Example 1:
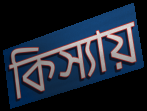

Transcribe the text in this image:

কিস্যায়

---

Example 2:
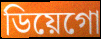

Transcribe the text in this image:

ডিয়েগো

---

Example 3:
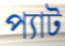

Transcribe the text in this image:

প্যাট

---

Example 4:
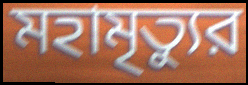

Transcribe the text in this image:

মহামৃত্যুর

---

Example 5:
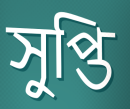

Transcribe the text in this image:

সুপ্তি